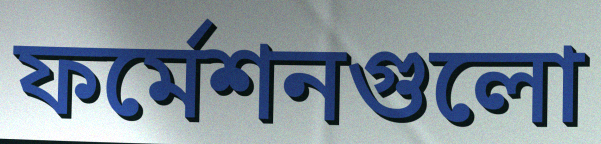
ফর্মেশনগুলো